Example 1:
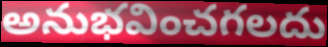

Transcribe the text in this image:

అనుభవించగలదు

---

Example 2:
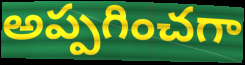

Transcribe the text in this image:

అప్పగించగా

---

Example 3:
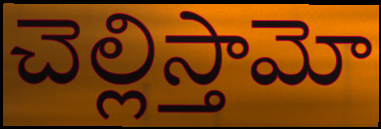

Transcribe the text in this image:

చెల్లిస్తామో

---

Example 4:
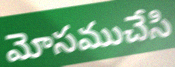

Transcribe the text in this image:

మోసముచేసి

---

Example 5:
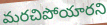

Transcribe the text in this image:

మరచిపోయారని